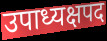
उपाध्यक्षपद